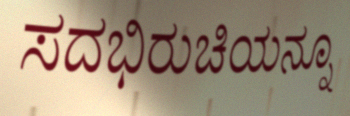
ಸದಭಿರುಚಿಯನ್ನೂ